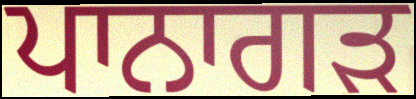
ਪਾਨਾਗੜ